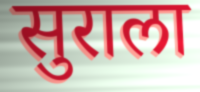
सुराला